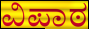
ವಿಪಾಠ